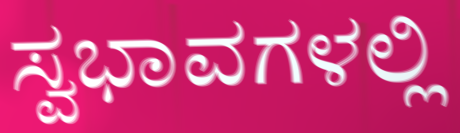
ಸ್ವಭಾವಗಳಲ್ಲಿ